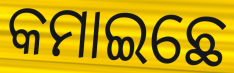
କମାଇଛେ